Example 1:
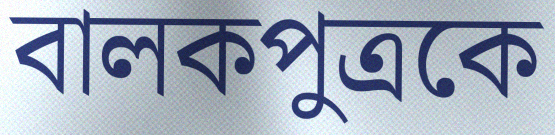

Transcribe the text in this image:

বালকপুত্রকে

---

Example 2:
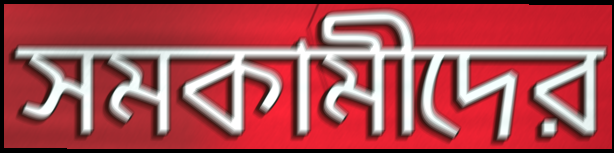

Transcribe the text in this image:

সমকামীদের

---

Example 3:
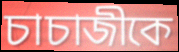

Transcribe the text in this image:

চাচাজীকে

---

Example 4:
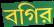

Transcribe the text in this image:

বগির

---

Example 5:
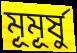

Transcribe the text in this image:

মূমূর্ষু